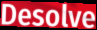
Desolve